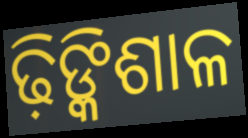
ଢ଼ିଙ୍କିଶାଳ